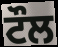
ਟੌਲ